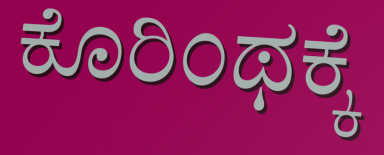
ಕೊರಿಂಥಕ್ಕೆ